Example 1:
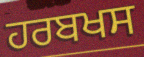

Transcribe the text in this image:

ਹਰਬਖਸ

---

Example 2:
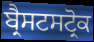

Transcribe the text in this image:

ਬ੍ਰੈਸਟਸਟ੍ਰੋਕ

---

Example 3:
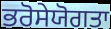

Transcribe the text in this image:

ਭਰੋਸੇਯੋਗਤਾ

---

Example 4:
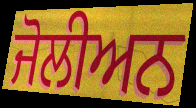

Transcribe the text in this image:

ਜੋਲੀਅਨ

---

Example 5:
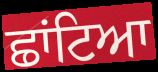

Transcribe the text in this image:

ਛਾਂਟਿਆ